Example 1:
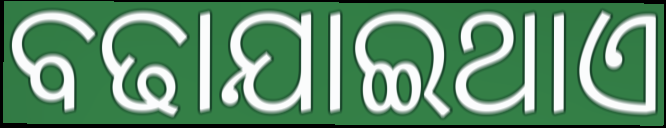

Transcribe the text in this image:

ବଢାଯାଇଥାଏ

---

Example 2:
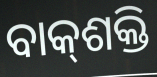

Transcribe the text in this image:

ବାକ୍‌ଶକ୍ତି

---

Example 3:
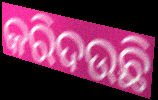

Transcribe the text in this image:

କରିଦଉଛି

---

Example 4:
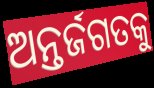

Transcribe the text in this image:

ଅନ୍ତର୍ଜଗତକୁ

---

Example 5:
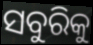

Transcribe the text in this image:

ସବୁରିକୁ